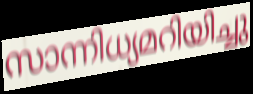
സാന്നിധ്യമറിയിച്ചു